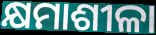
କ୍ଷମାଶୀଳା